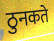
ठुनकते